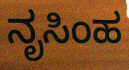
ನೃಸಿಂಹ